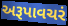
અરૂપાવચરં